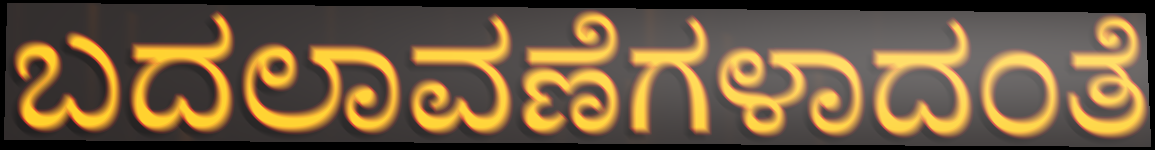
ಬದಲಾವಣೆಗಳಾದಂತೆ